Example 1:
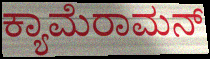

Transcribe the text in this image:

ಕ್ಯಾಮೆರಾಮನ್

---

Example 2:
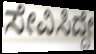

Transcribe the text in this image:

ಸೇವಿಸಿದ್ದೇ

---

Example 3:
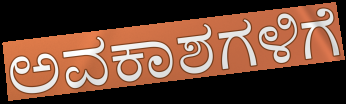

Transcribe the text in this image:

ಅವಕಾಶಗಳಿಗೆ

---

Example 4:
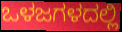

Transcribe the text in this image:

ಒಳಜಗಳದಲ್ಲಿ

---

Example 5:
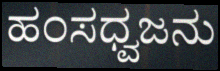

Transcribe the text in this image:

ಹಂಸಧ್ವಜನು